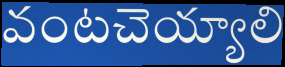
వంటచెయ్యాలి